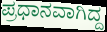
ಪ್ರಧಾನವಾಗಿದ್ದ